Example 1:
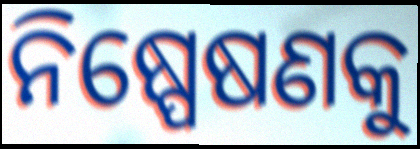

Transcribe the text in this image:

ନିଷ୍ପେଷଣକୁ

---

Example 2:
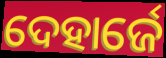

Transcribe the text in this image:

ଦେହାର୍ଜେ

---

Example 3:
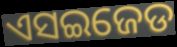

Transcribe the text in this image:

ଏସଇଜେଡ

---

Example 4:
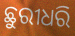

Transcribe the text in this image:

ଛୁରୀଧରି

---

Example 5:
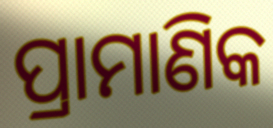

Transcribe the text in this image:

ପ୍ରାମାଣିକ